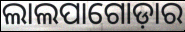
ଲାଲପାଗୋଡ଼ାର